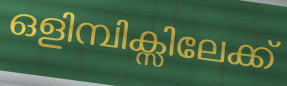
ഒളിമ്പിക്സിലേക്ക്